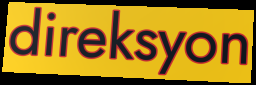
direksyon